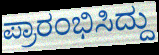
ಪ್ರಾರಂಭಿಸಿದ್ದು